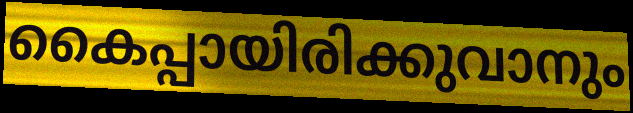
കൈപ്പായിരിക്കുവാനും